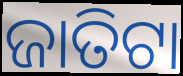
ଜାତିଟା